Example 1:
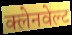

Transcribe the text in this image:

क्लेनवेल्ट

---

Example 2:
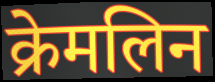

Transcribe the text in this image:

क्रेमलिन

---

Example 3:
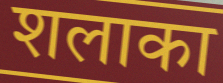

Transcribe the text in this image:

शलाका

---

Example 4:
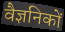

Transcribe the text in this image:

वैज्ञनिकों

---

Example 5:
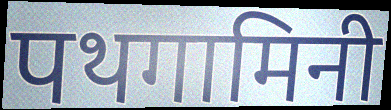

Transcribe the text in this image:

पथगामिनी